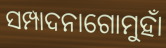
ସମ୍ପାଦନାଗୋମୁହାଁ